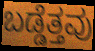
ಬಡ್ಡೆತ್ತವು